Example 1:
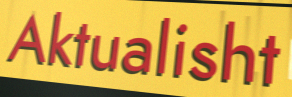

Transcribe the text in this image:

Aktualisht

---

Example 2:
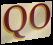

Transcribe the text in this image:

QO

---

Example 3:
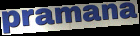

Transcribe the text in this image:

pramana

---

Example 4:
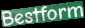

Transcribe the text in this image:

Bestform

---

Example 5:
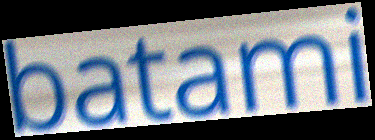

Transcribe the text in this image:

batami